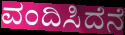
ವಂದಿಸಿದೆನೆ